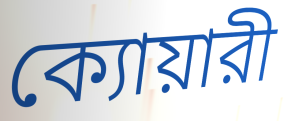
ক্যোয়ারী